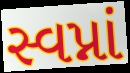
સ્વપ્નાં